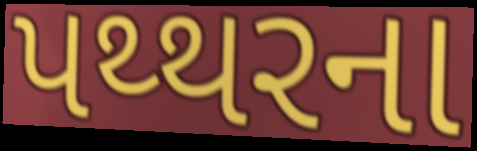
પથ્થરના